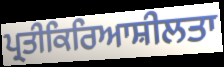
ਪ੍ਰਤੀਕਿਰਿਆਸ਼ੀਲਤਾ